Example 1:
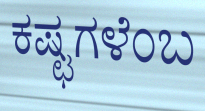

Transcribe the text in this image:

ಕಷ್ಟಗಳೆಂಬ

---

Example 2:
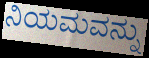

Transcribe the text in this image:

ನಿಯಮವನ್ನು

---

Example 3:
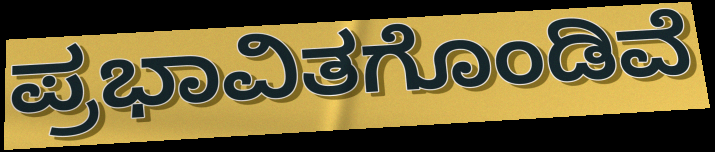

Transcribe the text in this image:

ಪ್ರಭಾವಿತಗೊಂಡಿವೆ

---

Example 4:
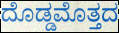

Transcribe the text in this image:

ದೊಡ್ಡಮೊತ್ತದ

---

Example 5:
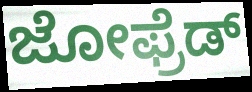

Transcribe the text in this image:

ಜೋಫ್ರೆಡ್